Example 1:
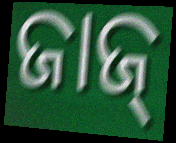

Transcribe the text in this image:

ଜାଜ୍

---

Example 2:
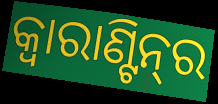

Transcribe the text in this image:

କ୍ବାରାଣ୍ଟିନ୍‌ର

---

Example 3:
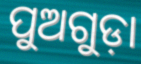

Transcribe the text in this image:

ପୁଅଗୁଡ଼ା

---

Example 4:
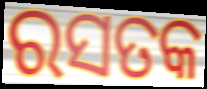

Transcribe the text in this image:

ରସତକ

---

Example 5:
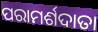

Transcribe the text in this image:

ପରାମର୍ଶଦାତା